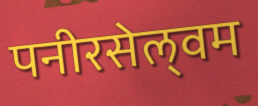
पनीरसेल्वम